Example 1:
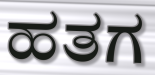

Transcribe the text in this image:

ಹತಗ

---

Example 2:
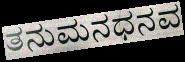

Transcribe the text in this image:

ತನುಮನಧನವ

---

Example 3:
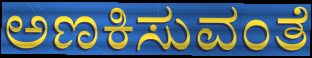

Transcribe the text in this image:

ಅಣಕಿಸುವಂತೆ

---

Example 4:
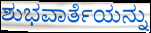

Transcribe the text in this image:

ಶುಭವಾರ್ತೆಯನ್ನು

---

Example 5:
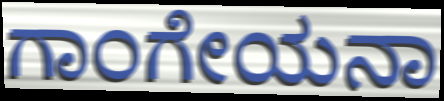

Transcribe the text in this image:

ಗಾಂಗೇಯನಾ